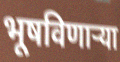
भूषविणाऱ्या